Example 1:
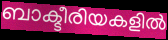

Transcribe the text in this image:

ബാക്ടീരിയകളിൽ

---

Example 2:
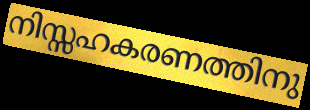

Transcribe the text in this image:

നിസ്സഹകരണത്തിനു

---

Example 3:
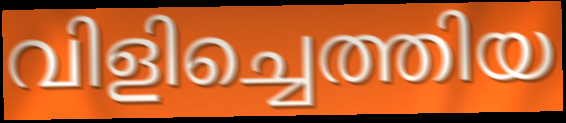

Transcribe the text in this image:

വിളിച്ചെത്തിയ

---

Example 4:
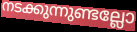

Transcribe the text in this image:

നടക്കുന്നുണ്ടല്ലോ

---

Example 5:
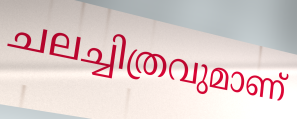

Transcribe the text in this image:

ചലച്ചിത്രവുമാണ്